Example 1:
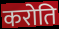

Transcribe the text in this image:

करोति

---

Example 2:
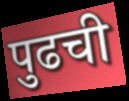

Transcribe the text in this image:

पुढची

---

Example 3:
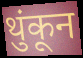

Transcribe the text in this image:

थुंकून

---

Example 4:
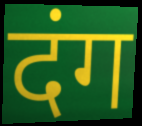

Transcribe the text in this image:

दंग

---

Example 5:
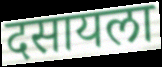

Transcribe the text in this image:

दसायला